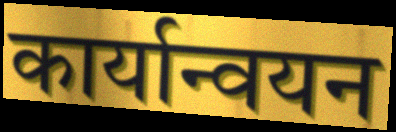
कार्यान्वयन